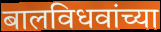
बालविधवांच्या